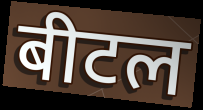
बीटल